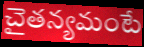
చైతన్యమంటే